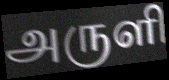
அருளி